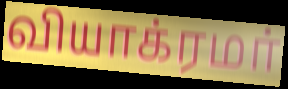
வியாக்ரமர்